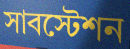
সাবস্টেশন